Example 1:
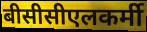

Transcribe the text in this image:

बीसीसीएलकर्मी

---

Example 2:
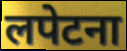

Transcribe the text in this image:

लपेटना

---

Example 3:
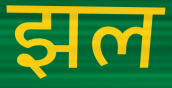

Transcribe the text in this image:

झल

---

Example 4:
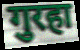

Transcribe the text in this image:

गुरहा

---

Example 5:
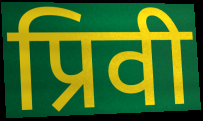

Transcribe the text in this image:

प्रिवी